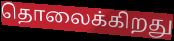
தொலைக்கிறது